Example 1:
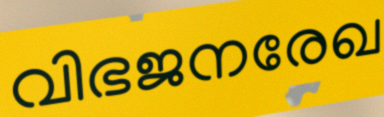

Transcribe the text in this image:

വിഭജനരേഖ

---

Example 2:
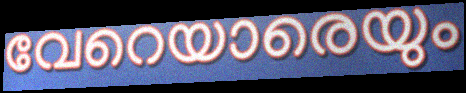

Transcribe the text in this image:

വേറെയാരെയും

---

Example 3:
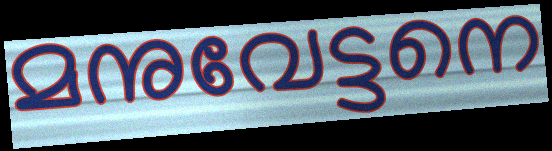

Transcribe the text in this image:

മനുവേട്ടനെ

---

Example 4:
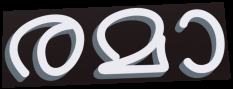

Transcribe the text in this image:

രമാ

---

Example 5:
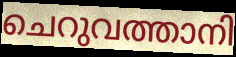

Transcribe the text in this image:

ചെറുവത്താനി